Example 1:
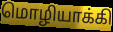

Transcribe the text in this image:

மொழியாக்கி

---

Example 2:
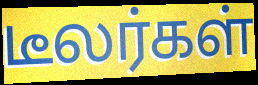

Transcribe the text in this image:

டீலர்கள்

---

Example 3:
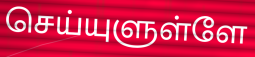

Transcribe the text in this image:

செய்யுளுள்ளே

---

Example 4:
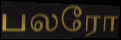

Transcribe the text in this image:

பலரோ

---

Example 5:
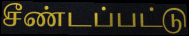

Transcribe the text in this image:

சீண்டப்பட்டு